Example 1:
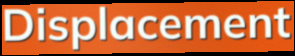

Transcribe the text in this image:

Displacement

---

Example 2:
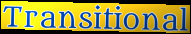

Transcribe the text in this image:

Transitional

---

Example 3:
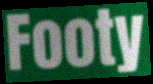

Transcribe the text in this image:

Footy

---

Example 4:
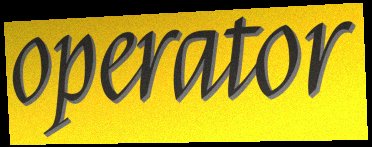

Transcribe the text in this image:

operator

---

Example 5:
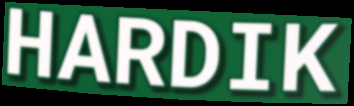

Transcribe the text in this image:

HARDIK